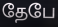
தேபே